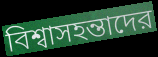
বিশ্বাসহন্তাদের